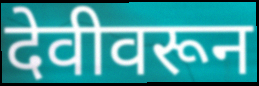
देवीवरून